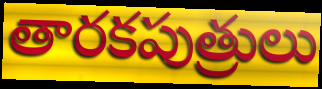
తారకపుత్రులు